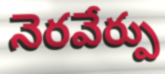
నెరవేర్పు